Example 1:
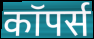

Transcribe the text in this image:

कॉपर्स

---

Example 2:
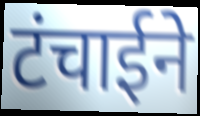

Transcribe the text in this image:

टंचाईने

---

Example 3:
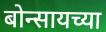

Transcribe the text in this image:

बोन्सायच्या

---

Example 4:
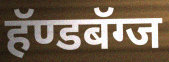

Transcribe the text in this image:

हॅण्डबॅग्ज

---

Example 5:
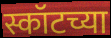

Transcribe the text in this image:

स्कॉटच्या